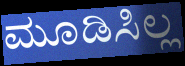
ಮೂಡಿಸಿಲ್ಲ